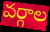
వర్గాల